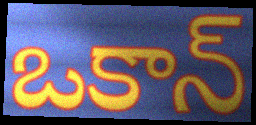
ఒకాన్